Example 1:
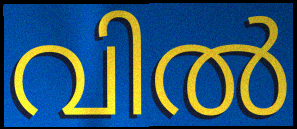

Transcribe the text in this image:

വിൽ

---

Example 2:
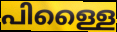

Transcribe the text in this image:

പിള്ളൈ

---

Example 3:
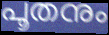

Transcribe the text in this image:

പൂതനും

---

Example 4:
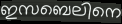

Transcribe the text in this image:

ഇസബെലിനെ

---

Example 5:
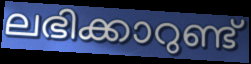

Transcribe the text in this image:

ലഭിക്കാറുണ്ട്